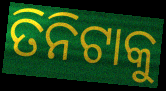
ତିନିଟାକୁ